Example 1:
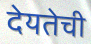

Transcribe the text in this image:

देयतेची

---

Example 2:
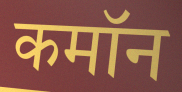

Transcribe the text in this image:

कमॉन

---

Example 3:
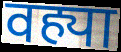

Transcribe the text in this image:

वह्या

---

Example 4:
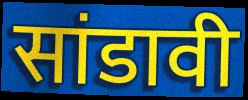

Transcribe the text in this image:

सांडावी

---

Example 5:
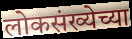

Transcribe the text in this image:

लोकसंख्येच्या